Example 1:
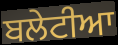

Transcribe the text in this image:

ਬਲੇਟੀਆ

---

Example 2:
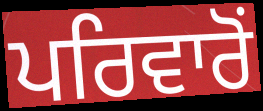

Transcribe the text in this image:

ਪਰਿਵਾਰੋਂ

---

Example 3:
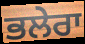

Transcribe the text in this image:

ਭਲੇਰਾ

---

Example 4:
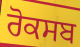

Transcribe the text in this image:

ਰੋਕਸਬ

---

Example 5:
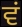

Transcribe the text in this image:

ਵਂ